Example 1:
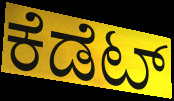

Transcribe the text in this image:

ಕೆಡೆಟ್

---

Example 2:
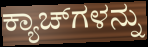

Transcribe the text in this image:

ಕ್ಯಾಚ್‌ಗಳನ್ನು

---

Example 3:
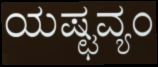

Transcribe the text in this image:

ಯಷ್ಟವ್ಯಂ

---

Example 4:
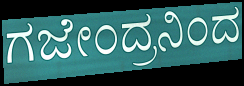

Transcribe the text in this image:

ಗಜೇಂದ್ರನಿಂದ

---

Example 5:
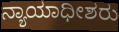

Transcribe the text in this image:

ನ್ಯಾಯಾಧೀಶರು